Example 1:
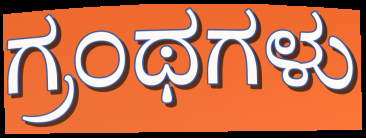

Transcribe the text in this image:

ಗ್ರಂಥಗಳು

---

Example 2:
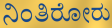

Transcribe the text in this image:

ನಿಂತಿರೋರು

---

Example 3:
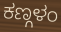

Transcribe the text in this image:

ಕಣ್ಗಳಂ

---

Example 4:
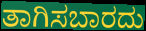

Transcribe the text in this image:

ತಾಗಿಸಬಾರದು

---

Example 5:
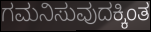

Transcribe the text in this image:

ಗಮನಿಸುವುದಕ್ಕಿಂತ